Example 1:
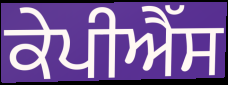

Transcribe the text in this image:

ਕੇਪੀਐੱਸ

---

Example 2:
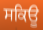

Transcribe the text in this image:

ਸਕਿਊ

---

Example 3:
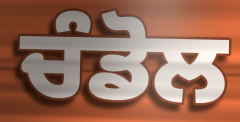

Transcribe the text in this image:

ਚੰਡੋਲ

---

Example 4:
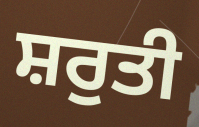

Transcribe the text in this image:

ਸ਼ਰੁਤੀ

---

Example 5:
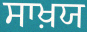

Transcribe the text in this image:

ਸਾਖ਼ਯ